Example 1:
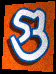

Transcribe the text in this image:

গু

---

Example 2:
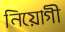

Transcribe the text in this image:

নিয়োগী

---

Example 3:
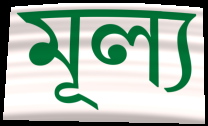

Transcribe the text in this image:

মূল্য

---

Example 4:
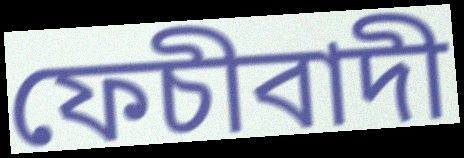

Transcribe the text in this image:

ফেচীবাদী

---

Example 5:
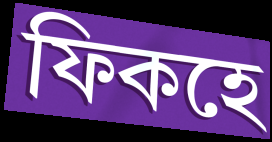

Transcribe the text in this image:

ফিকহে